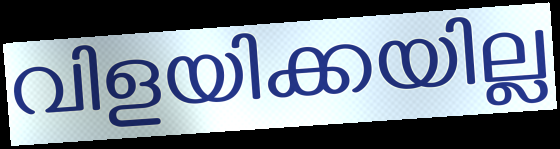
വിളയിക്കയില്ല